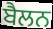
ਬੈਲਨ